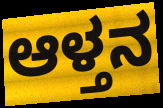
ಆಳ್ತನ